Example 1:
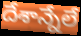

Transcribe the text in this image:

దేశాన్నేలే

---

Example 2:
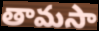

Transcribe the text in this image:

తామసా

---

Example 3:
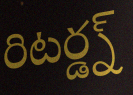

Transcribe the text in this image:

రిటర్డ్న్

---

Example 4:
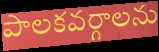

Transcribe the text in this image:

పాలకవర్గాలను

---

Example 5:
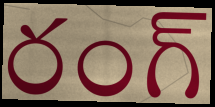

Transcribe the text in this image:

రంగ్